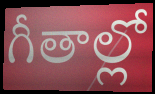
గీతాల్లో